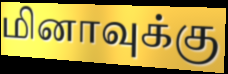
மினாவுக்கு